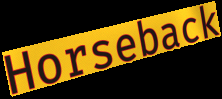
Horseback